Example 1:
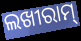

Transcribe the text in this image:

ଲଖୀରାମ୍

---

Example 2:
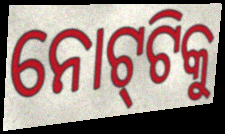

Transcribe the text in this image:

ନୋଟ୍‌ଟିକୁ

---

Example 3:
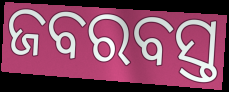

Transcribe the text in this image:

ଜବରବସ୍ତ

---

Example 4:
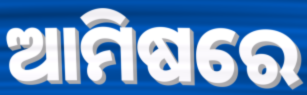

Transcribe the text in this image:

ଆମିଷରେ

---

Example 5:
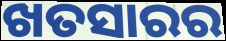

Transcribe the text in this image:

ଖତସାରର